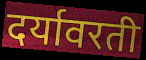
दर्यावरती